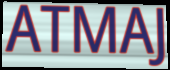
ATMAJ